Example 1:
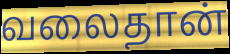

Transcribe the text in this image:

வலைதான்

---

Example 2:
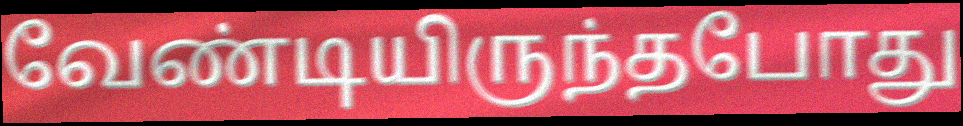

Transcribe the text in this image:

வேண்டியிருந்தபோது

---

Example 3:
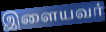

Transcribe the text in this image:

இளையவர்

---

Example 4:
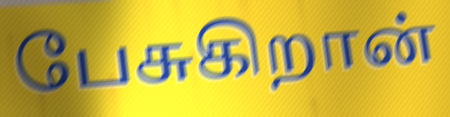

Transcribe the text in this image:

பேசுகிறான்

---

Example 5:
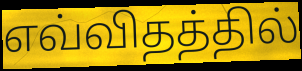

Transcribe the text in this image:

எவ்விதத்தில்